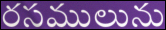
రసములును